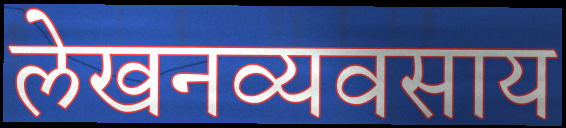
लेखनव्यवसाय